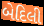
બેદિલી